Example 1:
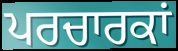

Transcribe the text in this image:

ਪਰਚਾਰਕਾਂ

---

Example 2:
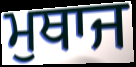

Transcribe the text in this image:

ਮੁਥਾਜ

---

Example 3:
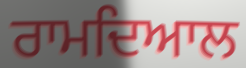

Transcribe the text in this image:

ਰਾਮਦਿਆਲ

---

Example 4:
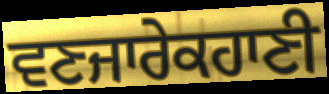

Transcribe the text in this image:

ਵਣਜਾਰੇਕਹਾਣੀ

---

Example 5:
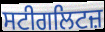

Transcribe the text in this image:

ਸਟੀਗਲਿਟਜ਼